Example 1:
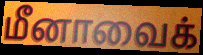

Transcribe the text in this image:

மீனாவைக்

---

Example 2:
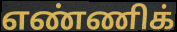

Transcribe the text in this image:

எண்ணிக்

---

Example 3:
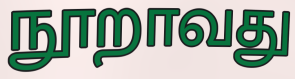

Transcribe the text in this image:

நூறாவது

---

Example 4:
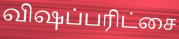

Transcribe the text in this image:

விஷப்பரிட்சை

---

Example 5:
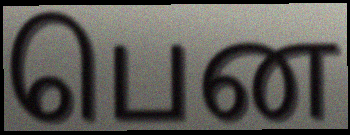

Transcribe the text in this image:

பென